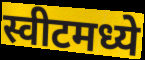
स्वीटमध्ये